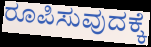
ರೂಪಿಸುವುದಕ್ಕೆ